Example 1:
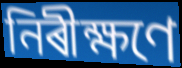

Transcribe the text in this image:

নিৰীক্ষণে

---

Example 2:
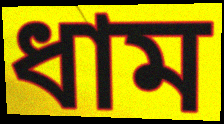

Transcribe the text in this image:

ধাম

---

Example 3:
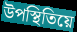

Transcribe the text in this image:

উপস্থিতিয়ে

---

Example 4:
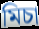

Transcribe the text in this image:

মিচা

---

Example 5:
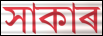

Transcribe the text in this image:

সাকাৰ